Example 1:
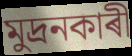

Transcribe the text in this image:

মুদ্ৰনকাৰী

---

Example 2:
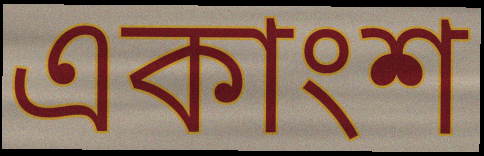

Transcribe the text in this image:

একাংশ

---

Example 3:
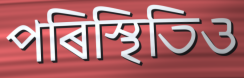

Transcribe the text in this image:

পৰিস্থিতিও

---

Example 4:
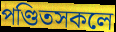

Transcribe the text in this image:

পণ্ডিতসকলে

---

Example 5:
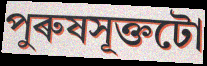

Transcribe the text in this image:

পুৰুষসূক্তটো